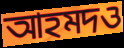
আহমদও